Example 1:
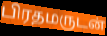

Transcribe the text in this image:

பிரதமருடன்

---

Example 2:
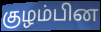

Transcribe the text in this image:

குழம்பின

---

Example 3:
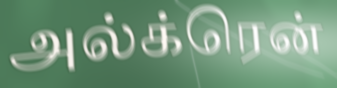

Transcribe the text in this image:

அல்க்ரென்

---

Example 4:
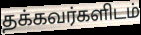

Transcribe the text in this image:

தக்கவர்களிடம்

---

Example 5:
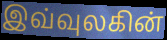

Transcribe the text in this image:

இவ்வுலகின்